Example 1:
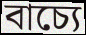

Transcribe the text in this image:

বাচ্যে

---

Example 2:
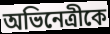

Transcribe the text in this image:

অভিনেত্রীকে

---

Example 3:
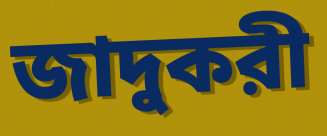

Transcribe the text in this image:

জাদুকরী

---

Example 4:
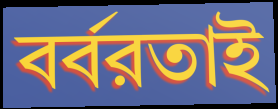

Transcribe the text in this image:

বর্বরতাই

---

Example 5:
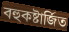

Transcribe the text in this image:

বহুকষ্টার্জিত